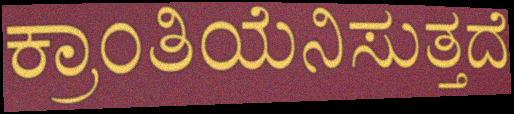
ಕ್ರಾಂತಿಯೆನಿಸುತ್ತದೆ